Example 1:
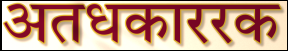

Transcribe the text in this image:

अतधकाररक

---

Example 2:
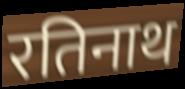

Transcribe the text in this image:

रतिनाथ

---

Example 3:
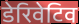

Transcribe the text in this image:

डेरिवेटिव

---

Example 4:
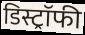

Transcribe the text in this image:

डिस्ट्रॉफी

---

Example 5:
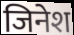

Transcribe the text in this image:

जिनेश